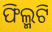
ଫିଲ୍ମଟି